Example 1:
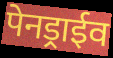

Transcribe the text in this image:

पेनड्राईव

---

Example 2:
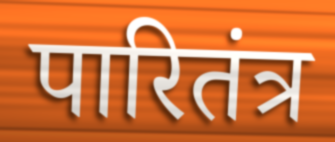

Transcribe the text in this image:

पारितंत्र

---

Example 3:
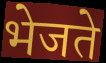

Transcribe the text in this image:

भेजते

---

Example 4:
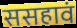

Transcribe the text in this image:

ससहावं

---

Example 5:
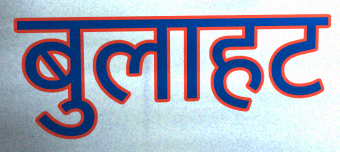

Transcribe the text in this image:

बुलाहट